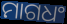
ମାଗଧଂ